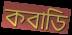
কবাডি